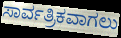
ಸಾರ್ವತ್ರಿಕವಾಗಲು